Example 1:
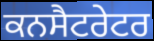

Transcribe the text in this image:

ਕਨਸੈਟਰੇਟਰ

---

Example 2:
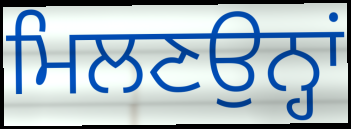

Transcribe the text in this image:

ਮਿਲਣਉਨ੍ਹਾਂ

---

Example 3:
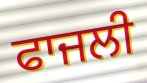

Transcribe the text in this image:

ਫਾਜਲੀ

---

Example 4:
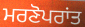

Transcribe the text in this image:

ਮਰਣੋਪਰਾਂਤ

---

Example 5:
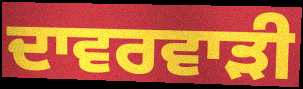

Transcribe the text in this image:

ਦਾਵਰਵਾੜੀ